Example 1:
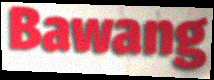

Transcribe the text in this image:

Bawang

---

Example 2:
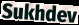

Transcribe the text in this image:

Sukhdev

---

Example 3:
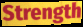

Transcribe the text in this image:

Strength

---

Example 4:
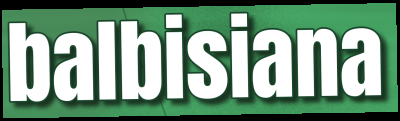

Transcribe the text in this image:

balbisiana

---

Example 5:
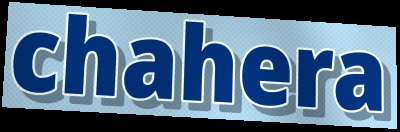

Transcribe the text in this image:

chahera